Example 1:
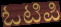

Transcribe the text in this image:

ಓಟಿಪಿ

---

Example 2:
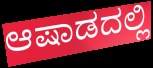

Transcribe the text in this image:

ಆಷಾಡದಲ್ಲಿ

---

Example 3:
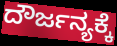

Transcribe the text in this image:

ದೌರ್ಜನ್ಯಕ್ಕೆ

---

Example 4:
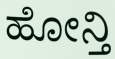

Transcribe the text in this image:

ಹೋನ್ತಿ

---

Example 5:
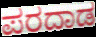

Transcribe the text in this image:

ಪರದಾಡ